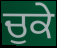
ਚੁਕੇ